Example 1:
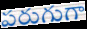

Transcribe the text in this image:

పరుగుగా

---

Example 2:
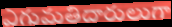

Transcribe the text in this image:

ఎగుమతిదారులుగా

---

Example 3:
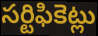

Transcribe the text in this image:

సర్టిఫికెట్లు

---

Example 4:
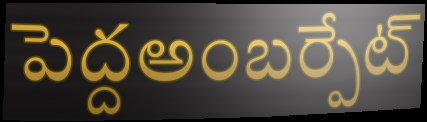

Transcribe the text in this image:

పెద్దఅంబర్పేట్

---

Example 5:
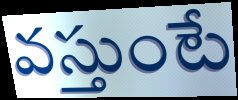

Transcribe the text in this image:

వస్తుంటే